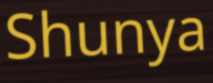
Shunya